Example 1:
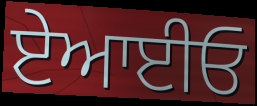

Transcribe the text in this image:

ਏਆਈਓ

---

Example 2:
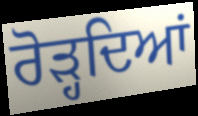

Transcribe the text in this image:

ਰੋੜ੍ਹਦਿਆਂ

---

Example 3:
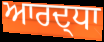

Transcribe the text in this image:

ਆਰਦ੍ਧਾ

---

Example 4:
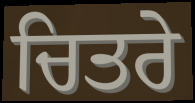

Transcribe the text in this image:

ਚਿਤਰੇ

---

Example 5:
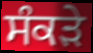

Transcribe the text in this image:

ਸੰਕੜੇ